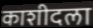
काशीदला